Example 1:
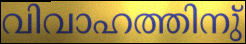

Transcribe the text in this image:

വിവാഹത്തിനു്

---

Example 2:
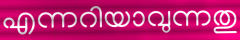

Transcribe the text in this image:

എന്നറിയാവുന്നതു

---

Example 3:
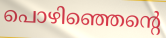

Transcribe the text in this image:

പൊഴിഞ്ഞെന്റെ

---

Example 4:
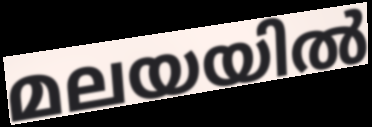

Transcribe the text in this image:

മലയയിൽ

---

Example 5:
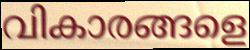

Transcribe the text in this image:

വികാരങ്ങളെ